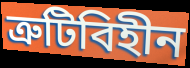
ত্রুটিবিহীন